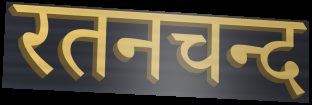
रतनचन्द